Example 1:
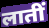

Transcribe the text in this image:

लातीं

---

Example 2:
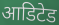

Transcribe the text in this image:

आडिटेड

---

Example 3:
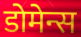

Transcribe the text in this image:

डोमेन्स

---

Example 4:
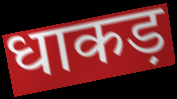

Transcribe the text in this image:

धाकड़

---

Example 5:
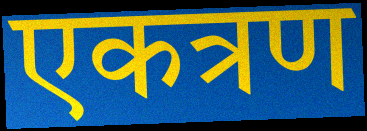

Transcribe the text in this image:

एकत्रण